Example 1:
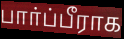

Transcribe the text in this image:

பார்ப்பீராக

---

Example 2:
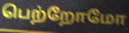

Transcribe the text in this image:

பெற்றோமோ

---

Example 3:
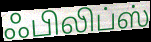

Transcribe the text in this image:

ஃபிலிப்ஸ்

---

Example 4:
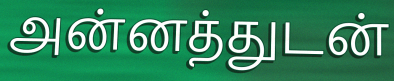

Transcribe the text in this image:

அன்னத்துடன்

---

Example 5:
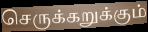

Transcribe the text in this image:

செருக்கறுக்கும்